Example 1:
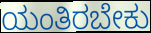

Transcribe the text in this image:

ಯಂತಿರಬೇಕು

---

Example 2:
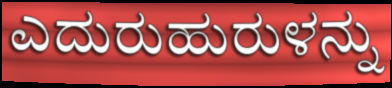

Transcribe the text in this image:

ಎದುರುಹುರುಳನ್ನು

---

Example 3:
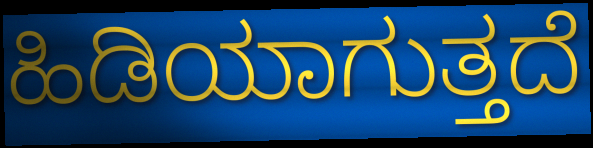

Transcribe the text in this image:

ಹಿಡಿಯಾಗುತ್ತದೆ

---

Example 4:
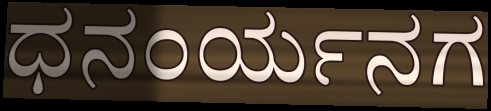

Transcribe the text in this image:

ಧನಂರ್ಯನಗ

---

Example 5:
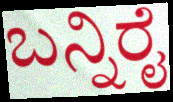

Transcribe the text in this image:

ಬನ್ನಿರೈ